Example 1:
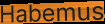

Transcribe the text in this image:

Habemus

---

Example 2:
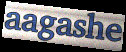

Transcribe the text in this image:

aagashe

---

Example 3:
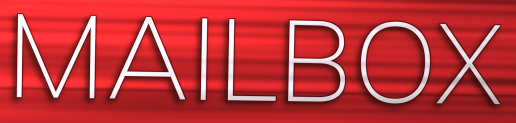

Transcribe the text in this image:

MAILBOX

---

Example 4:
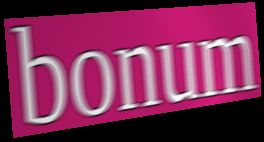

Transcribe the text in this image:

bonum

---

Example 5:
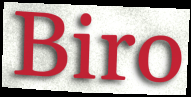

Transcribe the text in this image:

Biro